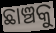
ଛାଞ୍ଚକୁ